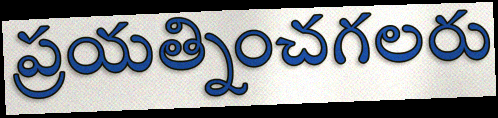
ప్రయత్నించగలరు